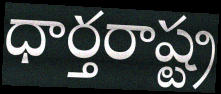
ధార్తరాష్ట్ర